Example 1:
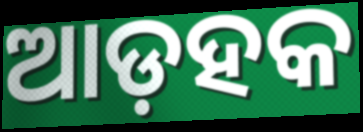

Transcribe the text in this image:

ଆଡ଼ହକ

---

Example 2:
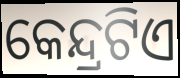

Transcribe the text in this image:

କେନ୍ଦ୍ରଟିଏ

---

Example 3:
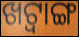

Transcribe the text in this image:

ଖଟ୍ଵାଙ୍ଗ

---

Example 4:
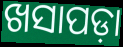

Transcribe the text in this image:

ଖସାପଡ଼ା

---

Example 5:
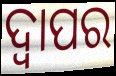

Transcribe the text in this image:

ଦ୍ୱାପର